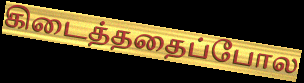
கிடைத்ததைப்போல